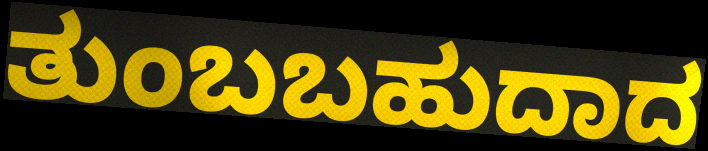
ತುಂಬಬಹುದಾದ